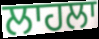
ਲਾਹਲਾ